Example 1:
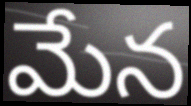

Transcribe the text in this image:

మేన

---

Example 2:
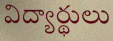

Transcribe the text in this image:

విద్యార్థులు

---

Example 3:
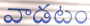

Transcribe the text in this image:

వాడటం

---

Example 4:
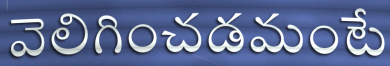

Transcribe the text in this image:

వెలిగించడమంటే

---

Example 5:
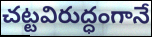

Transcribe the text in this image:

చట్టవిరుద్ధంగానే